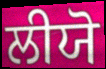
ਲੀਯੋ